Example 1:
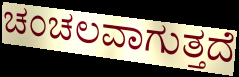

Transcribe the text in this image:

ಚಂಚಲವಾಗುತ್ತದೆ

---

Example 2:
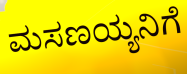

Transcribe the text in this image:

ಮಸಣಯ್ಯನಿಗೆ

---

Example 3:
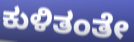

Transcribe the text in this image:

ಕುಳಿತಂತೇ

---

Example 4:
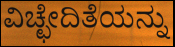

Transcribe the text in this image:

ವಿಚ್ಛೇದಿತೆಯನ್ನು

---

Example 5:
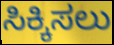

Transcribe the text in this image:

ಸಿಕ್ಕಿಸಲು